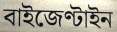
বাইজেণ্টাইন